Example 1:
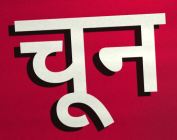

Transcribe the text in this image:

चून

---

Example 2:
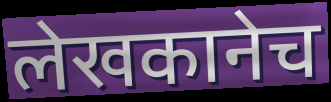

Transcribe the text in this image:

लेखकानेच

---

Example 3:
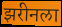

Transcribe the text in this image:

झरीनला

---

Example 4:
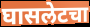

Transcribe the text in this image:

घासलेटचा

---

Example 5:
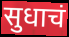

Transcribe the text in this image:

सुधाचं